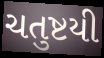
ચતુષ્ટયી